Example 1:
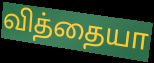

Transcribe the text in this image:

வித்தையா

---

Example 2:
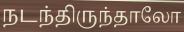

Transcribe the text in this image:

நடந்திருந்தாலோ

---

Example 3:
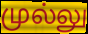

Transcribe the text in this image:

முல்லு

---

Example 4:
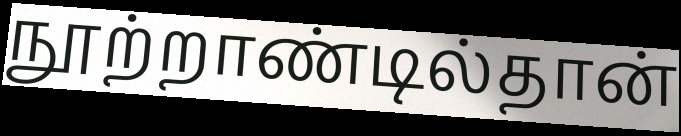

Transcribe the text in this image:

நூற்றாண்டில்தான்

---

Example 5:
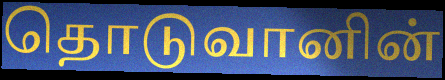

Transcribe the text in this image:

தொடுவானின்